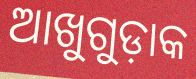
ଆଖୁଗୁଡ଼ାକ